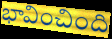
భావించింది